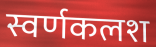
स्वर्णकलश